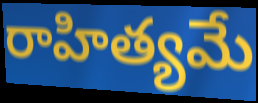
రాహిత్యమే